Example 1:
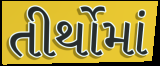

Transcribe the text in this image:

તીર્થોમાં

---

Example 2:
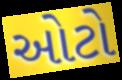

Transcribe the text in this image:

ઓટો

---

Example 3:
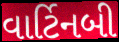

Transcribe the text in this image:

વાર્ટિનબી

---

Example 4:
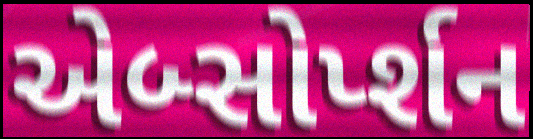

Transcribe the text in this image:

એબ્સોર્પ્શન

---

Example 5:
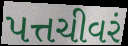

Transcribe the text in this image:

પત્તચીવરં